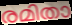
രമിതാ